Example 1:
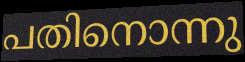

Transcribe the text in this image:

പതിനൊന്നു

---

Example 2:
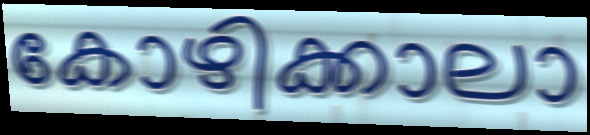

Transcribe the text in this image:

കോഴിക്കാലാ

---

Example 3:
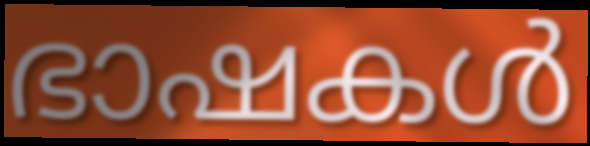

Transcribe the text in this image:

ഭാഷകൾ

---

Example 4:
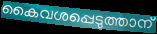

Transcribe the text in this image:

കൈവശപ്പെടുത്താന്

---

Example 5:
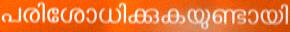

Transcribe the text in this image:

പരിശോധിക്കുകയുണ്ടായി